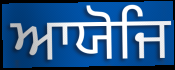
ਆਯੋਜਿ